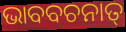
ଭାବବଚନାତ୍